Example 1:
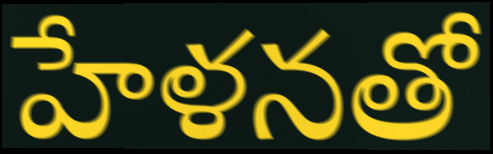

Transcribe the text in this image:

హేళనతో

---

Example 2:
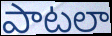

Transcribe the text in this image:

పాటలా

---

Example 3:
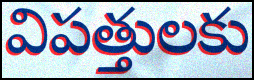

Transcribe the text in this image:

విపత్తులకు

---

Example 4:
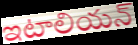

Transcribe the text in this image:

ఇటాలియన్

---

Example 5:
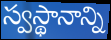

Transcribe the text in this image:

స్వస్థానాన్ని